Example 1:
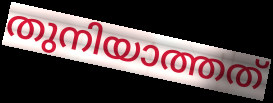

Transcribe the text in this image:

തുനിയാത്തത്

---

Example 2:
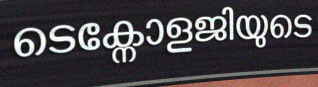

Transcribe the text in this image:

ടെക്നോളജിയുടെ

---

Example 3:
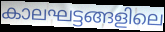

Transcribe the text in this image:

കാലഘട്ടങ്ങളിലെ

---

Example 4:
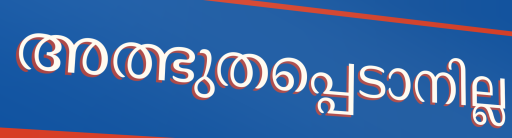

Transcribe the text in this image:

അത്ഭുതപ്പെടാനില്ല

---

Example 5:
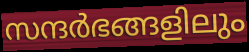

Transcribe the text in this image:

സന്ദർഭങ്ങളിലും